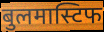
बुलमास्टिफ